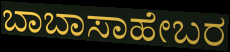
ಬಾಬಾಸಾಹೇಬರ